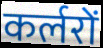
कर्लरों